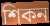
শিকন